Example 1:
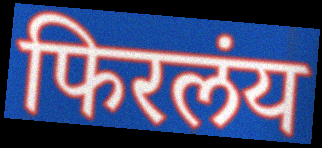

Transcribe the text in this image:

फिरलंय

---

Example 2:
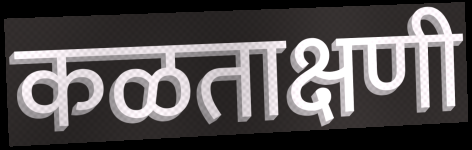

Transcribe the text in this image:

कळताक्षणी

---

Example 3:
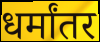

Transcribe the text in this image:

धर्मांतर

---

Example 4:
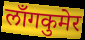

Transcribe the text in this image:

लाँगकुमेर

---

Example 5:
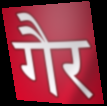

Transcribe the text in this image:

गैर